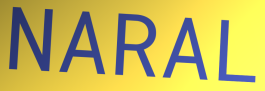
NARAL